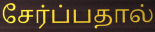
சேர்ப்பதால்